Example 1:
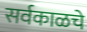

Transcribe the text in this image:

सर्वकाळचे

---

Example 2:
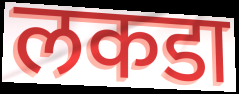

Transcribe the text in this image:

लकडा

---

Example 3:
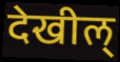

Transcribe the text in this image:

देखील्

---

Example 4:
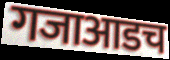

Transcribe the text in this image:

गजाआडच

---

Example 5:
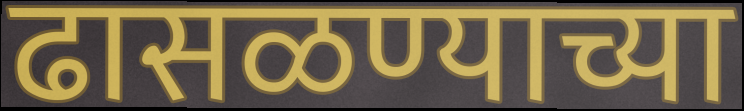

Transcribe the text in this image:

ढासळण्याच्या